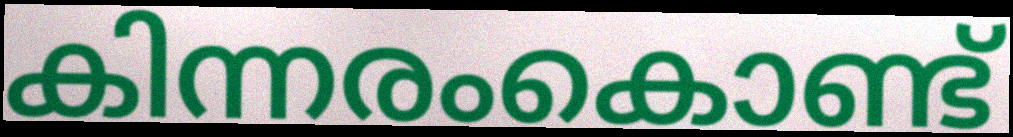
കിന്നരംകൊണ്ട്